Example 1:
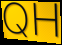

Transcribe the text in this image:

QH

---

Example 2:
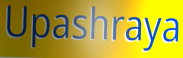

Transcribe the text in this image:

Upashraya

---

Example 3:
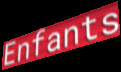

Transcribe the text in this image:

Enfants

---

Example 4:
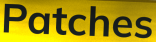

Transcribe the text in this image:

Patches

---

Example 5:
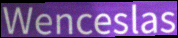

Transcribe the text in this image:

Wenceslas